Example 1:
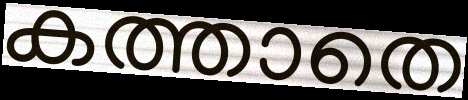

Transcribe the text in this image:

കത്താതെ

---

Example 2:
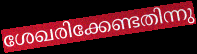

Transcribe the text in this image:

ശേഖരിക്കേണ്ടതിന്നു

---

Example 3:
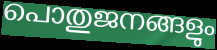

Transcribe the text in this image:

പൊതുജനങ്ങളും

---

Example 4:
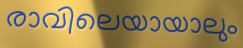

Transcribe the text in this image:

രാവിലെയായാലും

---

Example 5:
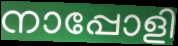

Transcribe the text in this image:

നാപ്പോളി